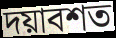
দয়াবশত